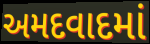
અમદવાદમાં